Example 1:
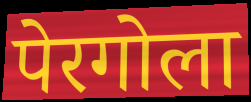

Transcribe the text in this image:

पेरगोला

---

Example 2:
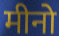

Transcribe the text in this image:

मीनो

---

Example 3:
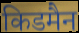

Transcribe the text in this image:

किडमैन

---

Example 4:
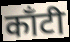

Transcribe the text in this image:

काँटी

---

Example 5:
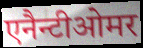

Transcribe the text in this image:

एनैन्टीओमर